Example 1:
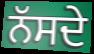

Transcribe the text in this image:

ਨੱਸਦੇ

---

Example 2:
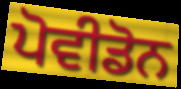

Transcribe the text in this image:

ਪੋਵੀਡੋਨ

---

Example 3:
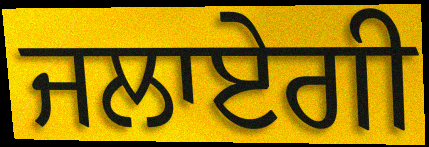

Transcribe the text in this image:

ਜਲਾਏਗੀ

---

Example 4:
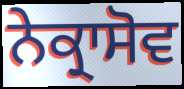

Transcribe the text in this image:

ਨੇਕ੍ਰਾਸੋਵ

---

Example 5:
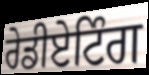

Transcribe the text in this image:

ਰੇਡੀਏਟਿੰਗ